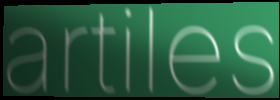
artiles